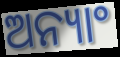
ଅନ୍ୟାଂ